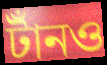
টাঁনও